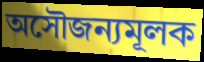
অসৌজন্যমূলক